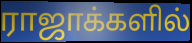
ராஜாக்களில்